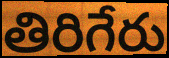
తిరిగేరు